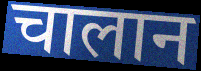
चालान